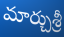
మార్చుశ్రీ